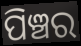
ପିଞ୍ଚର